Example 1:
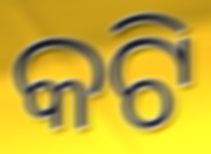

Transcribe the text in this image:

କଟି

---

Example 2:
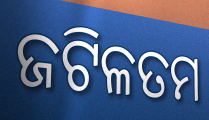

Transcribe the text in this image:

ଜଟିଳତମ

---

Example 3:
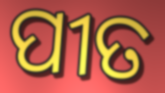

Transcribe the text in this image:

ପୀତ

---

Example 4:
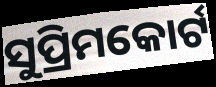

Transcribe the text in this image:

ସୁପ୍ରିମକୋର୍ଟ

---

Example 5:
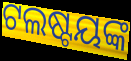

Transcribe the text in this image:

ଟଲଷ୍ଟୟଙ୍କ